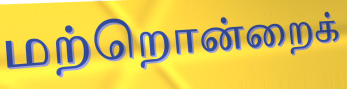
மற்றொன்றைக்